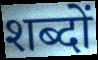
शब्दों